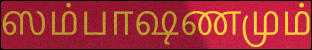
ஸம்பாஷணமும்